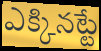
ఎక్కినట్టే